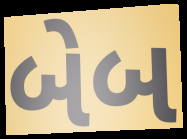
બેબ